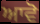
ਆਵੋ